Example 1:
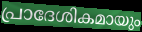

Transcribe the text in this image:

പ്രാദേശികമായും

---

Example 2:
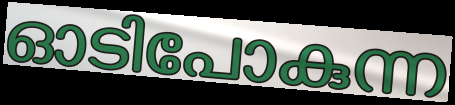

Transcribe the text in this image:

ഓടിപോകുന്ന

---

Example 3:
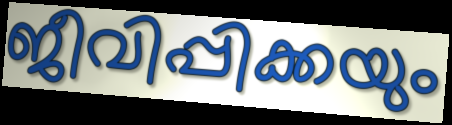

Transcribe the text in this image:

ജീവിപ്പിക്കയും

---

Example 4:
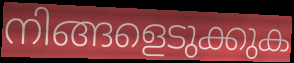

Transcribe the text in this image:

നിങ്ങളെടുക്കുക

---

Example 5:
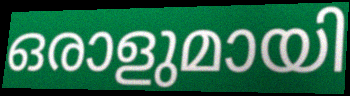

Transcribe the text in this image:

ഒരാളുമായി